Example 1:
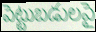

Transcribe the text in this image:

పెట్టుబడులపై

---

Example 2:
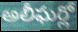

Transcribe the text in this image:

అలీఘర్లో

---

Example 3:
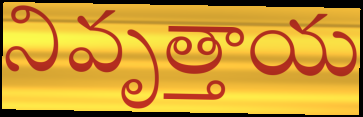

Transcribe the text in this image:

నివృత్తాయ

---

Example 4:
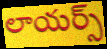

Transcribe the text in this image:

లాయర్స్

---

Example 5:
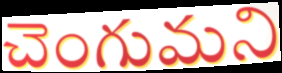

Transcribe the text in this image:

చెంగుమని